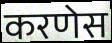
करणेस